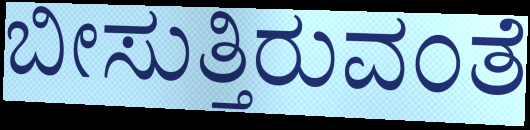
ಬೀಸುತ್ತಿರುವಂತೆ